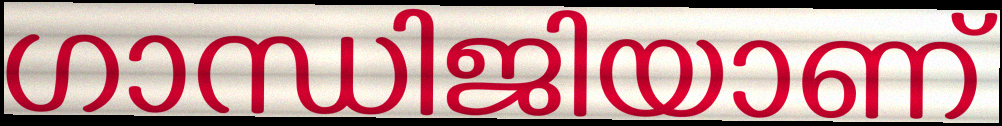
ഗാന്ധിജിയാണ്